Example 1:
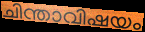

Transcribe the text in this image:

ചിന്താവിഷയം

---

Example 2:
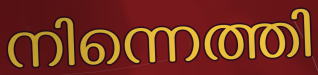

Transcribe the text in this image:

നിന്നെത്തി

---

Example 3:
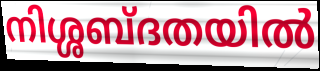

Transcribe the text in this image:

നിശ്ശബ്ദതയിൽ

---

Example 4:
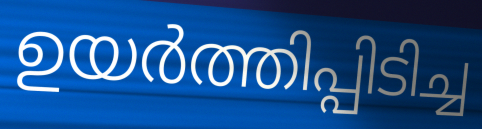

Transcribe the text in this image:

ഉയർത്തിപ്പിടിച്ച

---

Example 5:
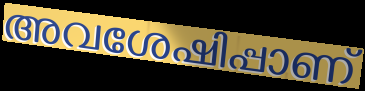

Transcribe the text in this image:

അവശേഷിപ്പാണ്